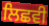
ਲਿਛਵੀ